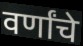
वर्णांचे